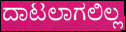
ದಾಟಲಾಗಲಿಲ್ಲ